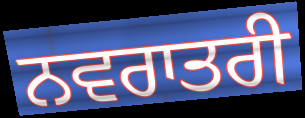
ਨਵਰਾਤਰੀ